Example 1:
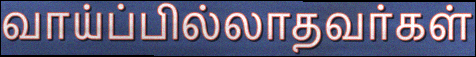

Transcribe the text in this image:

வாய்ப்பில்லாதவர்கள்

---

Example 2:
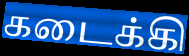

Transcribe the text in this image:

கடைக்கி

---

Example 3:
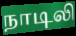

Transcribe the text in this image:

நாடிலி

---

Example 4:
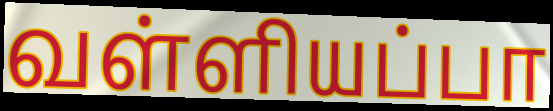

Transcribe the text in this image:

வள்ளியப்பா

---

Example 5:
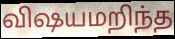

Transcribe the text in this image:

விஷயமறிந்த